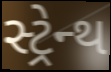
સ્ટ્રેન્થ